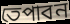
তেপাবন